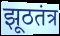
झूठतंत्र